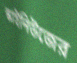
স্কাইনিউজের